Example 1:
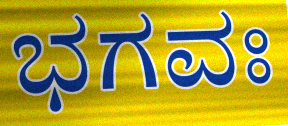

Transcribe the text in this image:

ಭಗವಃ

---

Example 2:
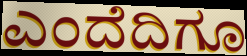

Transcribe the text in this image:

ಎಂದೆದಿಗೂ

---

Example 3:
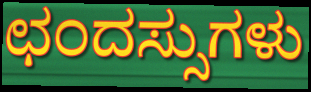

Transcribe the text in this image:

ಛಂದಸ್ಸುಗಳು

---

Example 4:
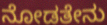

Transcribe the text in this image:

ನೋಡತೇನು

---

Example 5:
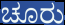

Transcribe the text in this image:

ಚೂರು